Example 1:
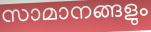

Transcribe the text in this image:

സാമാനങ്ങളും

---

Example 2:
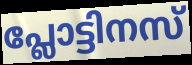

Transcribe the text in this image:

പ്ലോട്ടിനസ്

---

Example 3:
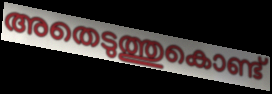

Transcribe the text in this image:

അതെടുത്തുകൊണ്ട്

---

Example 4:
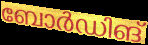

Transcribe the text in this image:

ബോർഡിങ്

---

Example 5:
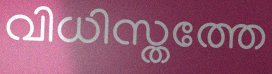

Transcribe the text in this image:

വിധിസ്തത്തേ